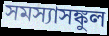
সমস্যাসঙ্কুল